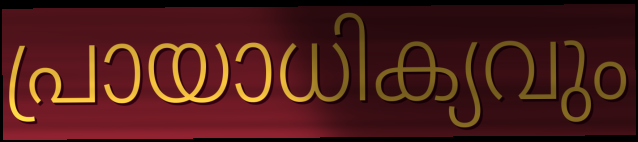
പ്രായാധിക്യവും